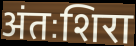
अंतःशिरा